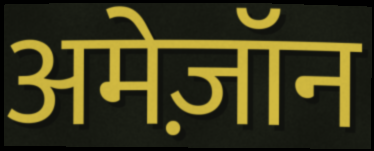
अमेज़ॉन